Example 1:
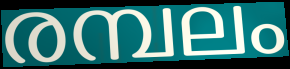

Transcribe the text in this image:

രമ്പലം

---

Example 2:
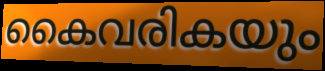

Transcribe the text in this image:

കൈവരികയും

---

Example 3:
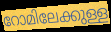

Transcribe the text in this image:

റോമിലേക്കുള്ള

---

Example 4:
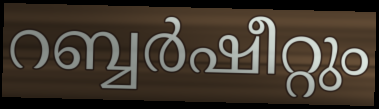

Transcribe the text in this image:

റബ്ബർഷീറ്റും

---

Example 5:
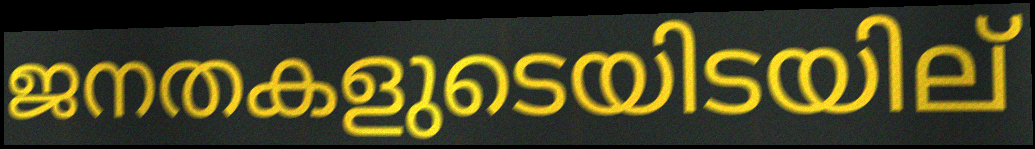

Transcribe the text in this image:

ജനതകളുടെയിടയില്